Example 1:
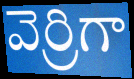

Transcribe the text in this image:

వెర్రిగా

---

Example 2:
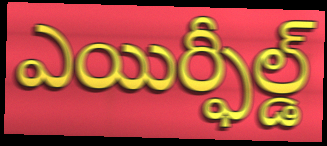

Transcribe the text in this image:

ఎయిర్ఫీల్డ్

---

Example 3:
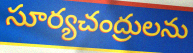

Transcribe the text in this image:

సూర్యచంద్రులను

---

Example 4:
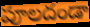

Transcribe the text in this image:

పూలదండా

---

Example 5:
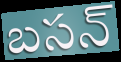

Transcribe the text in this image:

బసన్